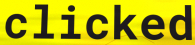
clicked